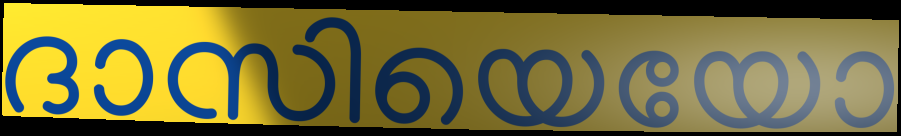
ദാസിയെയോ